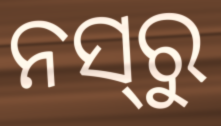
ନସ୍‍ରୁ